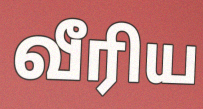
வீரிய